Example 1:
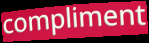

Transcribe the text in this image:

compliment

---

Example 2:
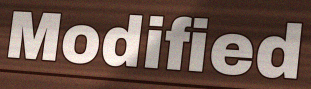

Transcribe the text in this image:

Modified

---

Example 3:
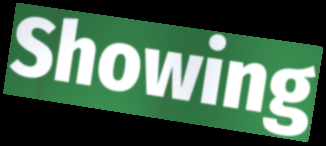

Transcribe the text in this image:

Showing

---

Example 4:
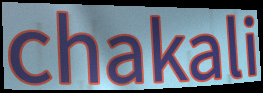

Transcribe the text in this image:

chakali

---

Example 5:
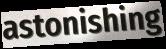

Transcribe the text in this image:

astonishing